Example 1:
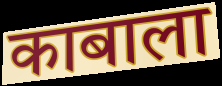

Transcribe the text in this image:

काबाला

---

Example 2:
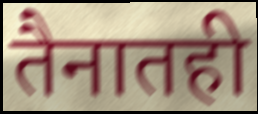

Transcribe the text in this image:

तैनातही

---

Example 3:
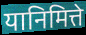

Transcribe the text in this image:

यानिमित्ते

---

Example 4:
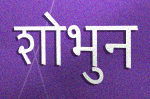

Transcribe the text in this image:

शोभुन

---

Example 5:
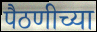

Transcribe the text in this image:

पैठणीच्या